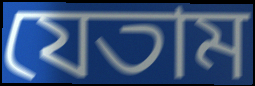
যেতাম